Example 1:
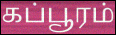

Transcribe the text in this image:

கப்பூரம்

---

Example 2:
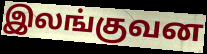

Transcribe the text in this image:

இலங்குவன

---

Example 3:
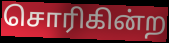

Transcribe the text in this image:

சொரிகின்ற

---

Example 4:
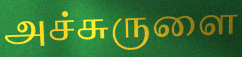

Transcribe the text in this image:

அச்சுருளை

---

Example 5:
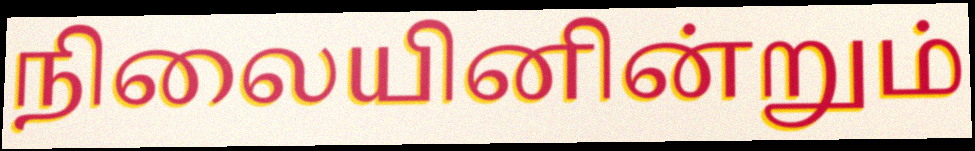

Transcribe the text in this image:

நிலையினின்றும்